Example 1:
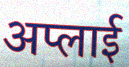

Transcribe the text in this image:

अप्‍लाई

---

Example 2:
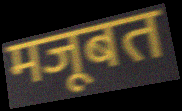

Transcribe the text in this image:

मजूबत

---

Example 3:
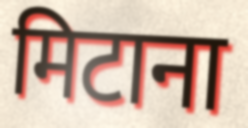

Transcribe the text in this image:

मिटाना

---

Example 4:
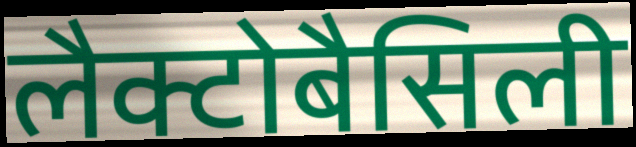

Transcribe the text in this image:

लैक्टोबैसिली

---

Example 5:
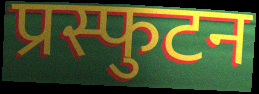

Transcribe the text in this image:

प्रस्‍फुटन